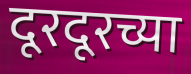
दूरदूरच्या